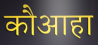
कौआहा